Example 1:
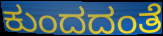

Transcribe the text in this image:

ಕುಂದದಂತೆ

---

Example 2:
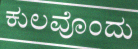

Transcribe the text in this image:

ಕುಲವೊಂದು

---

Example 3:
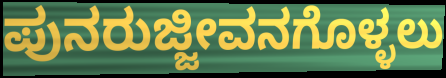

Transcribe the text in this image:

ಪುನರುಜ್ಜೀವನಗೊಳ್ಳಲು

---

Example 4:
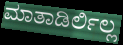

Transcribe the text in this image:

ಮಾತಾಡಿರ್ಲಿಲ್ಲ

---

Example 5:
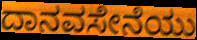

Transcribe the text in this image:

ದಾನವಸೇನೆಯು